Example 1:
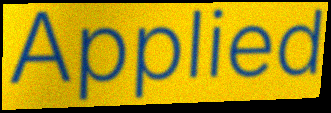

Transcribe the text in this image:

Applied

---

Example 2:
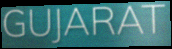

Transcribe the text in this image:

GUJARAT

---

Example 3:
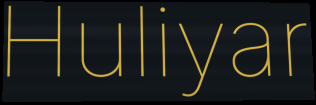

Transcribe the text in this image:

Huliyar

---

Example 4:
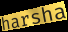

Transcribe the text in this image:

harsha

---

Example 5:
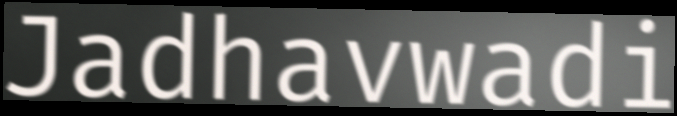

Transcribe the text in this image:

Jadhavwadi